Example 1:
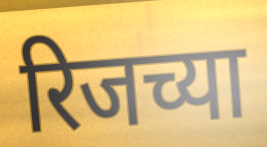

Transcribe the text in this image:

रिजच्या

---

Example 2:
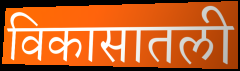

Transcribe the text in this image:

विकासातली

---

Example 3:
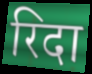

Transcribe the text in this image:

रिदा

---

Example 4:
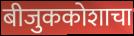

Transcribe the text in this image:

बीजुककोशाचा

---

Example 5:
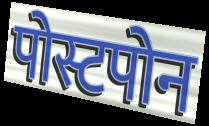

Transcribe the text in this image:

पोस्टपोन